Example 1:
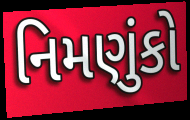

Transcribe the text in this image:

નિમણુંકો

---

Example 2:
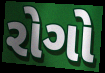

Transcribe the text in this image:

રોગો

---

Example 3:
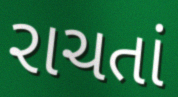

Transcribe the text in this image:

રાચતાં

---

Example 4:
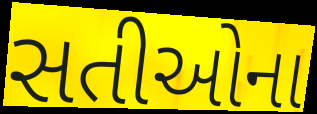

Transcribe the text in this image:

સતીઓના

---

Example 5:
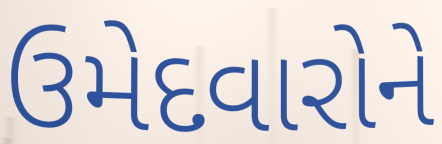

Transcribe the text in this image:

ઉમેદવારોને